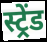
स्ट्रेंड